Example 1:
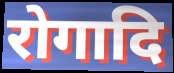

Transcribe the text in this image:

रोगादि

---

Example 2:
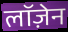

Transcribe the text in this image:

लॉज़ेन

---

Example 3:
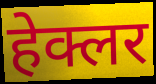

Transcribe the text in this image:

हेक्लर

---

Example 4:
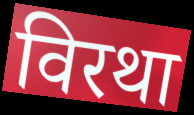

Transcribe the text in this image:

विरथा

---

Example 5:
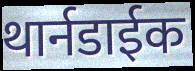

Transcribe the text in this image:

थार्नडाईक